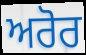
ਅਰੋਰ